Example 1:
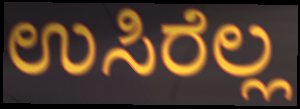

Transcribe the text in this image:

ಉಸಿರೆಲ್ಲ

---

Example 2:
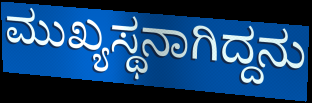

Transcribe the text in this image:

ಮುಖ್ಯಸ್ಥನಾಗಿದ್ದನು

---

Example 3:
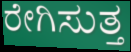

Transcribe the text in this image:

ರೇಗಿಸುತ್ತ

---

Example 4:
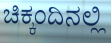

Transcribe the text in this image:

ಚಿಕ್ಕಂದಿನಲ್ಲಿ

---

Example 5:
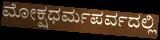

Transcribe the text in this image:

ಮೋಕ್ಷಧರ್ಮಪರ್ವದಲ್ಲಿ